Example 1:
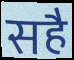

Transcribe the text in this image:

सहै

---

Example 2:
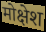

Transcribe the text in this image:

मोक्षेश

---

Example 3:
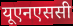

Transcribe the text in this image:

यूएनएससी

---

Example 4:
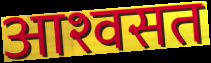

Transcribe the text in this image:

आश्वसत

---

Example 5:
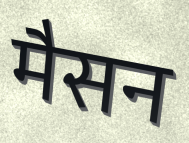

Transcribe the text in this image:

मैसन